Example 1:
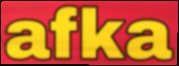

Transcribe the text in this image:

afka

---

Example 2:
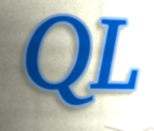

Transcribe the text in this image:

QL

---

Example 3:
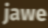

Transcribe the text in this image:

jawe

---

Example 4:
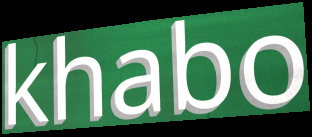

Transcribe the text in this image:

khabo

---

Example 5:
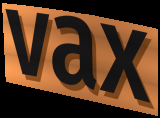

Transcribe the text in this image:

vax